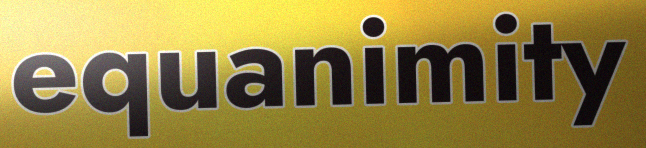
equanimity